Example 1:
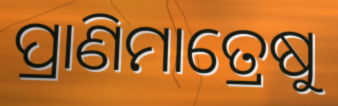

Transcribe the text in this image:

ପ୍ରାଣିମାତ୍ରେଷୁ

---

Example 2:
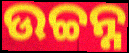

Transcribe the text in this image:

ଉଚ୍ଚନ୍ନ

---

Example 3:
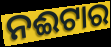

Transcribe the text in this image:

ନଈଟାର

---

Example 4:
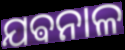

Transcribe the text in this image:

ଯଵନାଳ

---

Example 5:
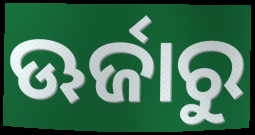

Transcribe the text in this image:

ଊର୍ଜାରୁ